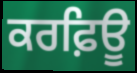
ਕਰਫ਼ਿਊ